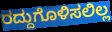
ರದ್ದುಗೊಳಿಸಲಿಲ್ಲ